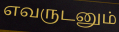
எவருடனும்